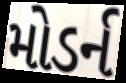
મોડર્ન